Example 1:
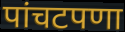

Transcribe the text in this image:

पांचटपणा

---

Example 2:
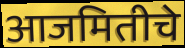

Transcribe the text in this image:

आजमितीचे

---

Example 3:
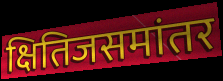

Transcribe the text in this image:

क्षितिजसमांतर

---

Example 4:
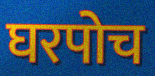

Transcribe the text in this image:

घरपोच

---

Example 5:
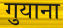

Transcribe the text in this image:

गुयाना